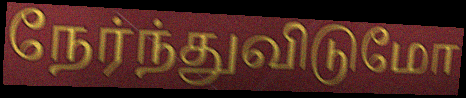
நேர்ந்துவிடுமோ